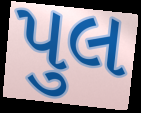
પુલ